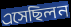
এসেছিলন